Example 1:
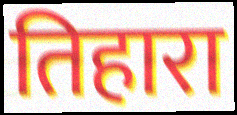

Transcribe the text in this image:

तिहारा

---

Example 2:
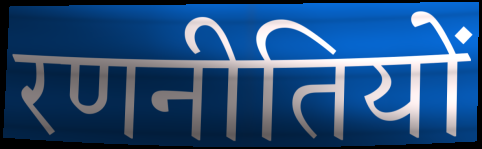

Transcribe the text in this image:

रणनीतियों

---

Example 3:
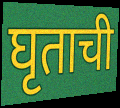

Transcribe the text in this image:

घृताची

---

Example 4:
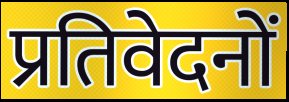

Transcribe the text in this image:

प्रतिवेदनों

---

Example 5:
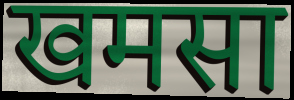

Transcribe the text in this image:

खमसा